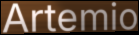
Artemio